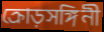
ক্রোড়সঙ্গিনী